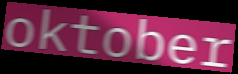
oktober